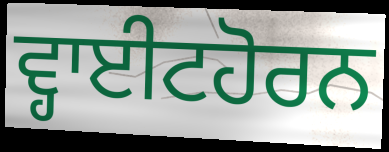
ਵ੍ਹਾਈਟਹੋਰਨ